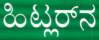
ಹಿಟ್ಲರ್‌ನ